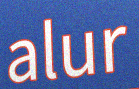
alur